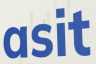
asit